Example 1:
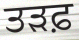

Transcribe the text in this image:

ਤੜਫ਼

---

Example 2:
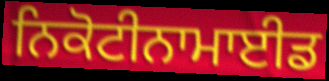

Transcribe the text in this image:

ਨਿਕੋਟੀਨਾਮਾਈਡ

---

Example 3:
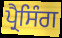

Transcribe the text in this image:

ਪ੍ਰੈਸਿੰਗ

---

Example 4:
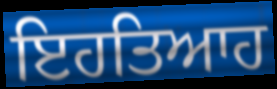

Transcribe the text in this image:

ਇਹਤਿਆਹ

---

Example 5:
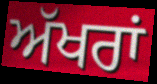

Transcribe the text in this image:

ਅੱਖਰਾਂ